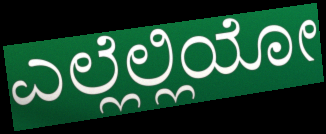
ಎಲ್ಲೆಲ್ಲಿಯೋ